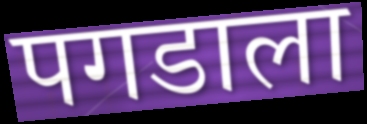
पगडाला